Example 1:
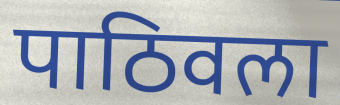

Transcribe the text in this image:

पाठिवला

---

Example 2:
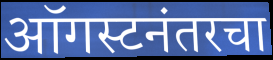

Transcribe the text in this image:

ऑगस्टनंतरचा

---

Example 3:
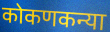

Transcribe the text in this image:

कोकणकन्या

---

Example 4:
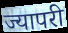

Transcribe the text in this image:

ज्यापरी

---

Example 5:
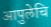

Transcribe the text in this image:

आपुलेचि